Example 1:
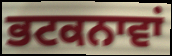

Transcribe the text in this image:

ਭਟਕਨਾਵਾਂ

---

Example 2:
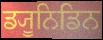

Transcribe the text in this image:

ਡ੍ਯੂਨਿਡਿਨ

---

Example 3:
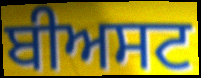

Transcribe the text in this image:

ਬੀਅਸਟ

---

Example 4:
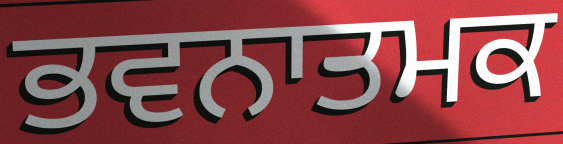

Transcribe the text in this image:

ਭਵਨਾਤਮਕ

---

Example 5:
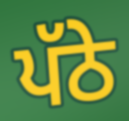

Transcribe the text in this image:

ਪੱਠੇ